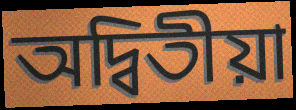
অদ্বিতীয়া